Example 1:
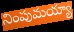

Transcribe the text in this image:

నింపుమయ్యా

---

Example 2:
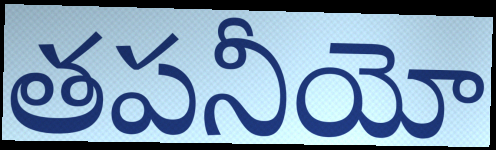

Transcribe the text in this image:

తపనీయో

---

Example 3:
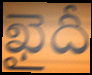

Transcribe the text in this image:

ఖైదీ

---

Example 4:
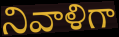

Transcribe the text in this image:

నివాళిగా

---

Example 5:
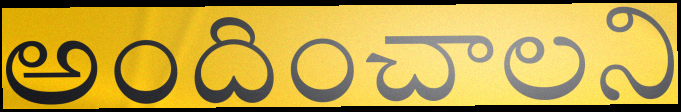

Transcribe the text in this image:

అందించాలని